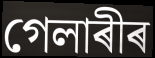
গেলাৰীৰ